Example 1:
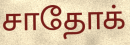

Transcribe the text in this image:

சாதோக்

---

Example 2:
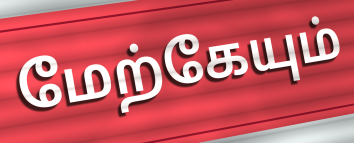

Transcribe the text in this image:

மேற்கேயும்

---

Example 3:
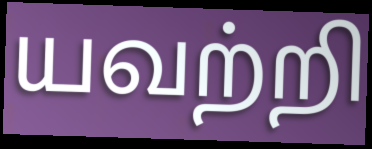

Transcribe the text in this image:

யவற்றி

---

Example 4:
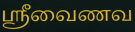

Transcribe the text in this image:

ஸ்ரீவைணவ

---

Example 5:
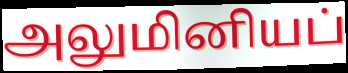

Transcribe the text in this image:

அலுமினியப்